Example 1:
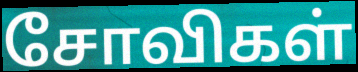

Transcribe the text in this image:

சோவிகள்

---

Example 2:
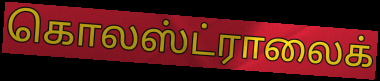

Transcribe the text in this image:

கொலஸ்ட்ராலைக்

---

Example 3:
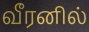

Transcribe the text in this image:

வீரனில்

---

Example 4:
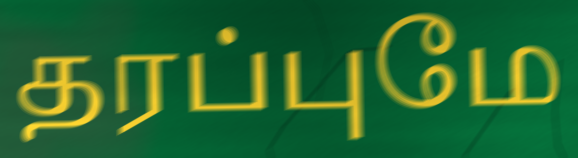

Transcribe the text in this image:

தரப்புமே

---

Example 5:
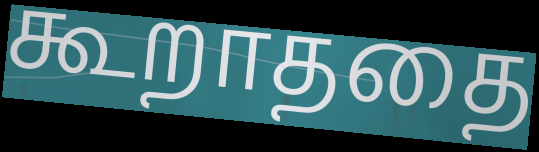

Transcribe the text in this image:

கூறாததை